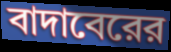
বাদাবেরের